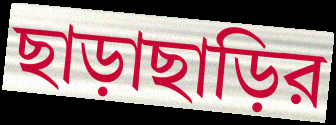
ছাড়াছাড়ির